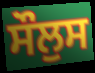
ਸੌਲੁਸ